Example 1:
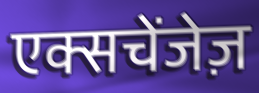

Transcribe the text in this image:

एक्सचेंजेज़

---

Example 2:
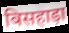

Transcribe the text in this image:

बिसहाड़ा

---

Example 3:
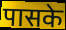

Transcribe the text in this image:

पासके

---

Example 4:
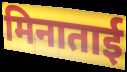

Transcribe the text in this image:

मिनाताई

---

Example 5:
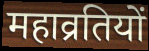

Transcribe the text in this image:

महाव्रतियों